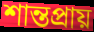
শান্তপ্রায়